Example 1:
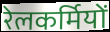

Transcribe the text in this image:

रेलकर्मियों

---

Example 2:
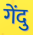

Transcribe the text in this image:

गेंदु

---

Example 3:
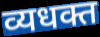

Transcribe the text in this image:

व्यधक्त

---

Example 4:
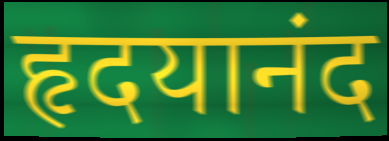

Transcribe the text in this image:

हृदयानंद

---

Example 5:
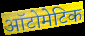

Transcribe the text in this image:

ऑटोमेटिक